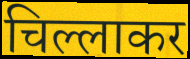
चिल्‍लाकर